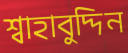
শ্বাহাবুদ্দিন